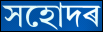
সহোদৰ